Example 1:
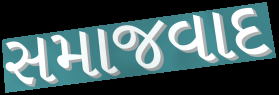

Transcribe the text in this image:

સમાજવાદ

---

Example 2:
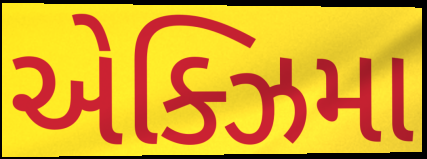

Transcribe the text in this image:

એક્ઝિમા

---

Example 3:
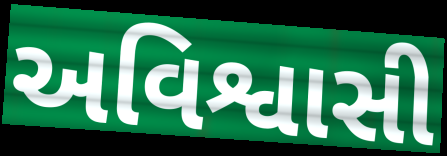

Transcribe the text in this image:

અવિશ્વાસી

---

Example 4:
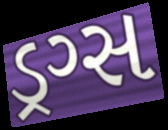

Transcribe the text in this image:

ડ્રગ્સ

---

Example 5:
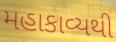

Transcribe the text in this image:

મહાકાવ્યથી